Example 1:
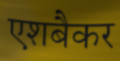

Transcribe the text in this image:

एशबैकर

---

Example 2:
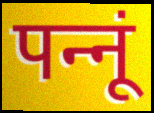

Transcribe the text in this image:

पन्नूं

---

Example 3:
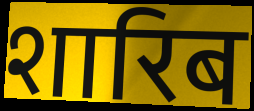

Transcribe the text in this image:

शारिब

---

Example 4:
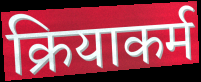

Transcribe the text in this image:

क्रियाकर्म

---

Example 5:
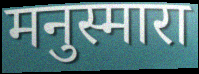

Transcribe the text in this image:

मनुस्मारा